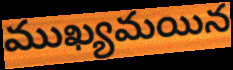
ముఖ్యమయిన